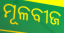
ମୂଳବୀଜ